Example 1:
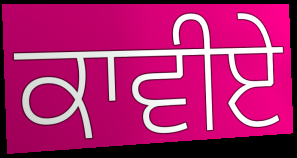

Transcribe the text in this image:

ਕਾਵੀਏ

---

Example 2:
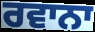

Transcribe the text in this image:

ਰਵਾਨਾ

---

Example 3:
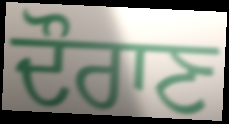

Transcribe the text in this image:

ਦੌਰਾਣ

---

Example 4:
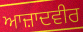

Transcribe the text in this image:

ਆਜ਼ਾਦਵੀਰ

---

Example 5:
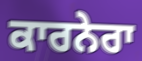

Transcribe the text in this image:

ਕਾਰਨੇਰਾ